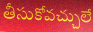
తీసుకోవచ్చులే